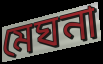
মেঘনা